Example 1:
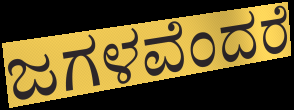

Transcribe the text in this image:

ಜಗಳವೆಂದರೆ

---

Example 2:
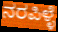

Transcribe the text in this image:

ನರಪಿಳ್ಳೆ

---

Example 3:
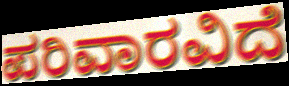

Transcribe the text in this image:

ಪರಿವಾರವಿದೆ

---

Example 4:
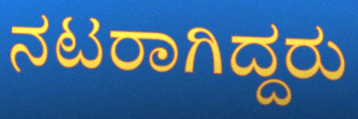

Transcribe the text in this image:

ನಟರಾಗಿದ್ದರು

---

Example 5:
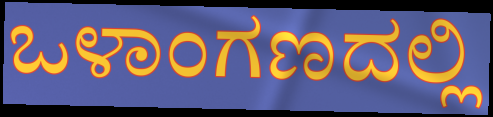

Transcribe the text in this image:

ಒಳಾಂಗಣದಲ್ಲಿ